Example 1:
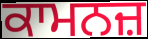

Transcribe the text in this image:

ਕਾਮਨਜ਼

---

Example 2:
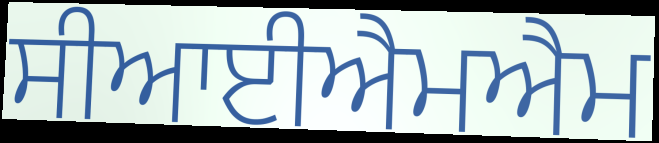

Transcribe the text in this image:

ਸੀਆਈਐਮਐਮ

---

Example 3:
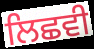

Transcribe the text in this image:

ਲਿਛਵੀ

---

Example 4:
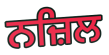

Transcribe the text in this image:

ਨਜ਼ਿਲ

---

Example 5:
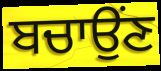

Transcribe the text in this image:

ਬਚਾਉਂਣ